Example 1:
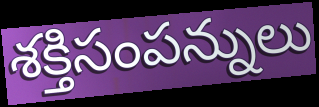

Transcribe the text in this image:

శక్తిసంపన్నులు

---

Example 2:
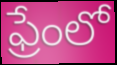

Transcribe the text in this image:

ఫ్రేంలో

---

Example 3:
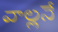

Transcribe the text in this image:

వాల్లనే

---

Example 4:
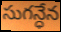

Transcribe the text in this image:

సుగన్ధేన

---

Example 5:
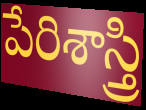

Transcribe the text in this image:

పేరిశాస్త్రి